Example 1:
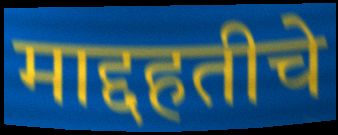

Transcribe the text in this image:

माद्दहतीचे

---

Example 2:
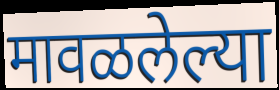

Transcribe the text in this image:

मावळलेल्या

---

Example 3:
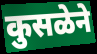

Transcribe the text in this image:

कुसळेने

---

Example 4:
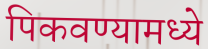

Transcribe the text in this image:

पिकवण्यामध्ये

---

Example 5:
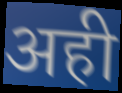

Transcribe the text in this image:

अही